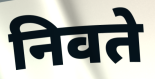
निवते